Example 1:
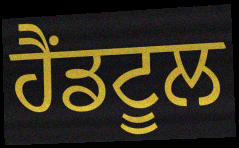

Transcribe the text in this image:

ਹੈਂਡਟੂਲ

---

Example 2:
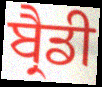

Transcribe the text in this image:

ਬ੍ਰੈਡੀ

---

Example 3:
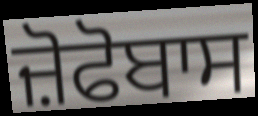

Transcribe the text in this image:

ਜ਼ੋਫੋਬਾਸ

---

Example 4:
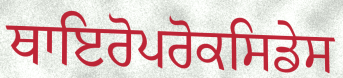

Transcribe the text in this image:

ਥਾਇਰੋਪਰੋਕਸਿਡੇਸ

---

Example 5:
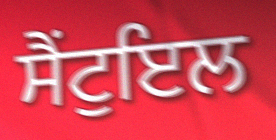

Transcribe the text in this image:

ਸੈਂਟੁਇਲ